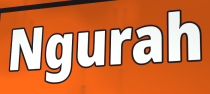
Ngurah